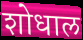
शोधाल